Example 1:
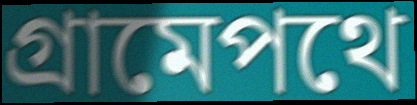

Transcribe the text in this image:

গ্রামেপথে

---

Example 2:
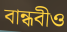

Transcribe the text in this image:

বান্ধবীও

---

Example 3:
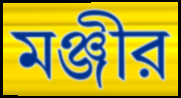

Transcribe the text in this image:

মঞ্জীর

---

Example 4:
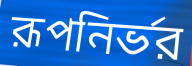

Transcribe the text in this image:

রূপনির্ভর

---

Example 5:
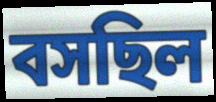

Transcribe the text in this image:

বসছিল